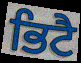
ਭਿਟੈ